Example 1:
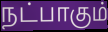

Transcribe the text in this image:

நட்பாகும்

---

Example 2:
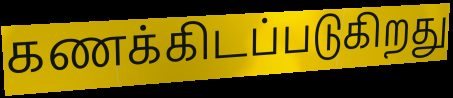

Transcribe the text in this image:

கணக்கிடப்படுகிறது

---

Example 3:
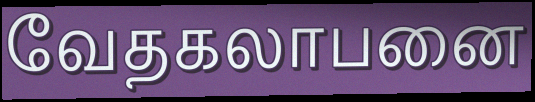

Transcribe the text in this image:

வேதகலாபனை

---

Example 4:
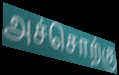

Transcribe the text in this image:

அச்சொற்கு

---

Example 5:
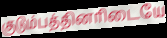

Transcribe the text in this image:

குடும்பத்தினரிடையே